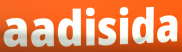
aadisida